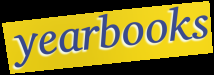
yearbooks